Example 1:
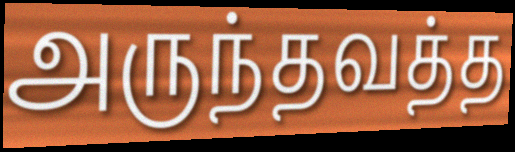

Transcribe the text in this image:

அருந்தவத்த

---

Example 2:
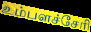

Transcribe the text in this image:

உம்பளச்சேரி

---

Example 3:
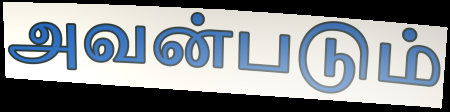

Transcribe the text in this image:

அவன்படும்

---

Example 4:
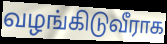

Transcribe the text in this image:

வழங்கிடுவீராக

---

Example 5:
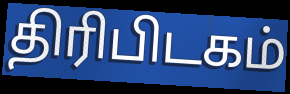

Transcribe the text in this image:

திரிபிடகம்